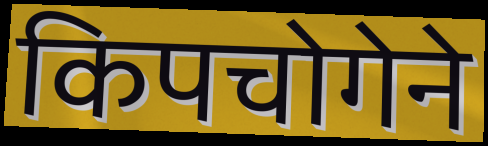
किपचोगेने